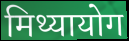
मिथ्यायोग